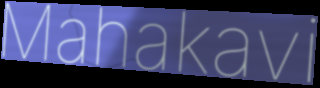
Mahakavi